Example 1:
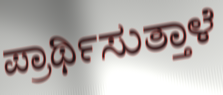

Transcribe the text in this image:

ಪ್ರಾರ್ಥಿಸುತ್ತಾಳೆ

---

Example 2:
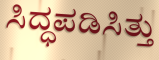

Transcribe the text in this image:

ಸಿದ್ಧಪಡಿಸಿತ್ತು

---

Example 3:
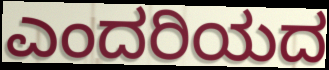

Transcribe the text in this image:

ಎಂದರಿಯದ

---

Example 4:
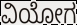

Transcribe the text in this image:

ವಿಯೋಗ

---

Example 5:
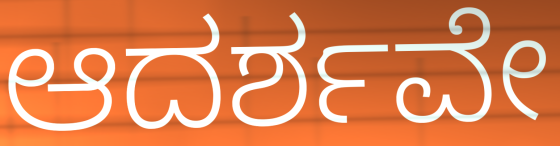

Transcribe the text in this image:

ಆದರ್ಶವೇ